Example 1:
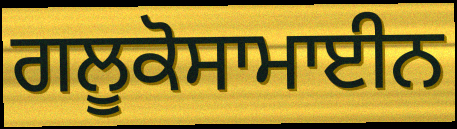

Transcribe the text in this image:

ਗਲੂਕੋਸਾਮਾਈਨ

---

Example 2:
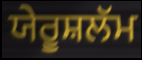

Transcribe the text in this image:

ਯੇਰੂਸ਼ਲੱਮ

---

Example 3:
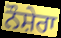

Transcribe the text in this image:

ਨੌਸ਼ੇਰਾ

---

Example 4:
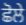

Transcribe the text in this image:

ਛੋਲੇ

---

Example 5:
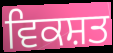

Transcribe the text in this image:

ਵਿਕਸ਼ਤ